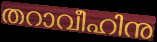
തറാവീഹിനു